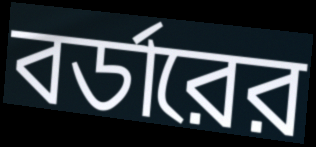
বর্ডারের